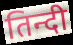
तिन्दी